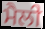
ਮੈਲੀ